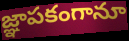
జ్ఞాపకంగానూ